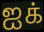
ஐக்